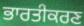
ਭਾਰਤੀਕਰਣ